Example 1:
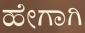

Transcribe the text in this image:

ಹೇಗಾಗಿ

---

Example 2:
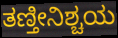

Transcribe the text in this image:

ತಣ್ತೀನಿಶ್ಚಯ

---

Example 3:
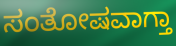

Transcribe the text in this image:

ಸಂತೋಷವಾಗ್ತಾ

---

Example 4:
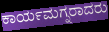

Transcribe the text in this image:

ಕಾರ್ಯಮಗ್ನರಾದರು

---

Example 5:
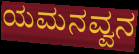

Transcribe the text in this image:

ಯಮನವ್ವನ